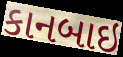
કાનબાઇ